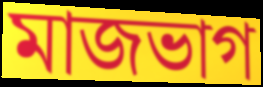
মাজভাগ